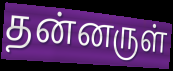
தன்னருள்